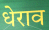
धेराव